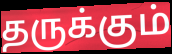
தருக்கும்